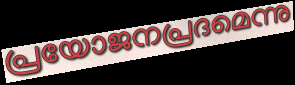
പ്രയോജനപ്രദമെന്നു